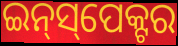
ଇନ୍‍ସ୍‌ପେକ୍ଟର